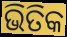
ଭିତିକ